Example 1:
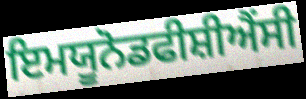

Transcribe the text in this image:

ਇਮਯੂਨੋਡਫੀਸ਼ੀਐਂਸੀ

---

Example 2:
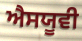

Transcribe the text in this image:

ਐਸਯੂਵੀ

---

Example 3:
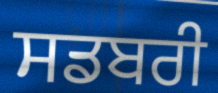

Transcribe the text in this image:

ਸਡਬਰੀ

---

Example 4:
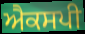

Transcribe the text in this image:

ਐਕਸਪੀ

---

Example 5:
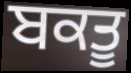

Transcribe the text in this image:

ਬਕਤੂ